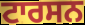
ਟਾਰਸਨ